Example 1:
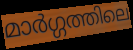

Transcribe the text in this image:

മാർഗ്ഗത്തിലെ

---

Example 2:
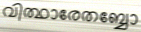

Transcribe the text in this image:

വിത്ഥാരേതബ്ബോ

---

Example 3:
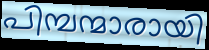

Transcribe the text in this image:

പിമ്പന്മാരായി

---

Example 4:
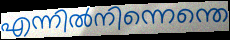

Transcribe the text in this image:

എന്നിൽനിന്നെന്തെ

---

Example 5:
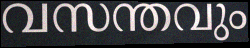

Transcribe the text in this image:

വസന്തവും